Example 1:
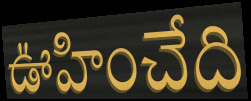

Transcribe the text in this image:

ఊహించేది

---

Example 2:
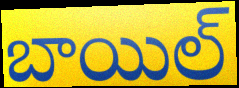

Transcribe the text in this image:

బాయిల్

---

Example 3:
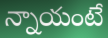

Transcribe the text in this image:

న్నాయంటే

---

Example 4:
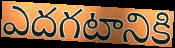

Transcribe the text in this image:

ఎదగటానికి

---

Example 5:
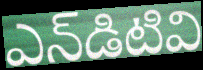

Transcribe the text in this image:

ఎన్‌డిటివి